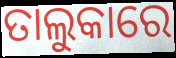
ତାଲୁକାରେ